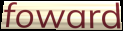
foward